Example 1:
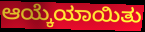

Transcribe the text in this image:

ಆಯ್ಕೆಯಾಯಿತು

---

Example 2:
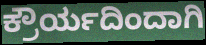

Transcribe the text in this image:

ಕ್ರೌರ್ಯದಿಂದಾಗಿ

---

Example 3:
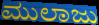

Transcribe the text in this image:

ಮುಲಾಜು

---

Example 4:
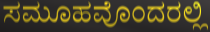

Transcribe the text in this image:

ಸಮೂಹವೊಂದರಲ್ಲಿ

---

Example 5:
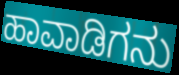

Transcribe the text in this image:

ಹಾವಾಡಿಗನು